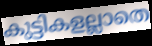
കുട്ടികളല്ലാതെ